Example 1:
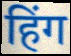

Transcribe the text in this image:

हिंग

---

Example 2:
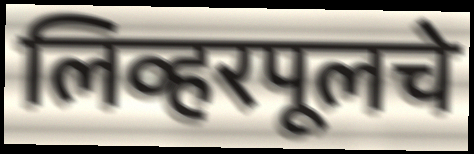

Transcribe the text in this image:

लिव्हरपूलचे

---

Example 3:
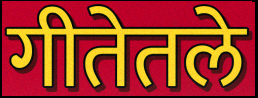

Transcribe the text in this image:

गीतेतले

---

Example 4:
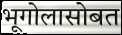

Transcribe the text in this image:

भूगोलासोबत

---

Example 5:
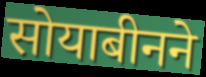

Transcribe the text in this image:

सोयाबीनने